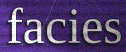
facies